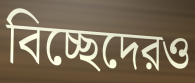
বিচ্ছেদেরও